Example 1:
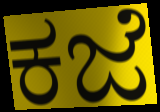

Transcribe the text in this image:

ಕಜೆ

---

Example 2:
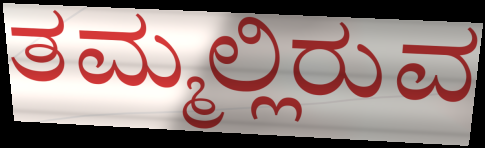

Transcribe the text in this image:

ತಮ್ಮಲ್ಲಿರುವ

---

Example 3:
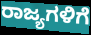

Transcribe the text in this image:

ರಾಜ್ಯಗಳಿಗೆ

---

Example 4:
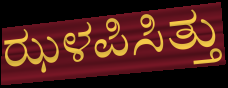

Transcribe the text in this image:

ಝಳಪಿಸಿತ್ತು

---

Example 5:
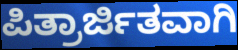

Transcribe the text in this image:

ಪಿತ್ರಾರ್ಜಿತವಾಗಿ